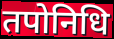
तपोनिधि